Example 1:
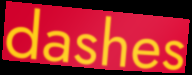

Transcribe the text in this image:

dashes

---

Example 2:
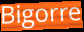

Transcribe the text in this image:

Bigorre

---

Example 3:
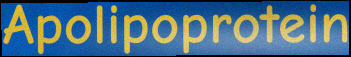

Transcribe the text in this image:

Apolipoprotein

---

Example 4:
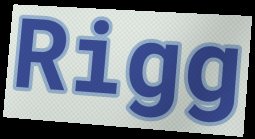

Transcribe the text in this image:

Rigg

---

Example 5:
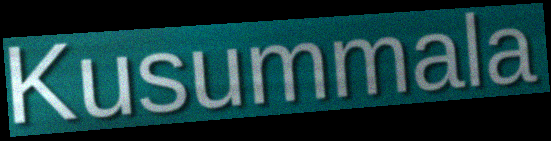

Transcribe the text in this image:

Kusummala